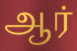
ஆர்